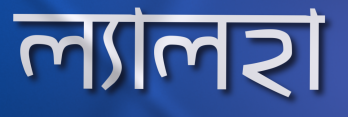
ল্যালহা